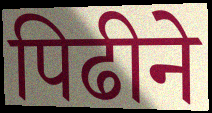
पिढीने